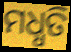
ମଧ୍ଧତି